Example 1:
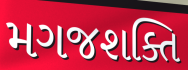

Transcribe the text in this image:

મગજશક્તિ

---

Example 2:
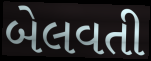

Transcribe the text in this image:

બેલવતી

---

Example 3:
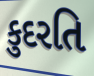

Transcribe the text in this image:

કુદરતિ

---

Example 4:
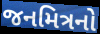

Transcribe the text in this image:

જનમિત્રનો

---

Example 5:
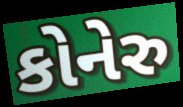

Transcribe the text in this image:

કોનેરુ